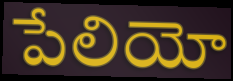
పేలియో